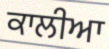
ਕਾਲੀਆ